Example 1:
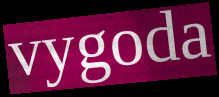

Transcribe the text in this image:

vygoda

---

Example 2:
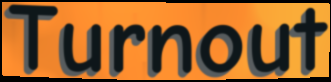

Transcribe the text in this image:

Turnout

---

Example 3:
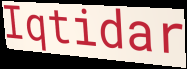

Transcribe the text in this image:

Iqtidar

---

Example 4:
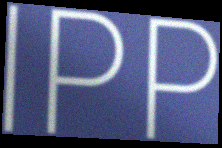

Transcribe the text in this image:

IPP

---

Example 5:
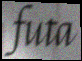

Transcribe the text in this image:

futa